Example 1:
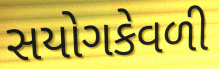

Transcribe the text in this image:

સયોગકેવળી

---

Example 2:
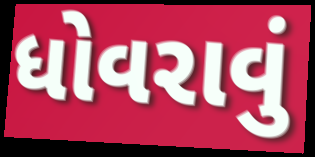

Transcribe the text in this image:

ધોવરાવું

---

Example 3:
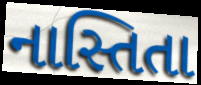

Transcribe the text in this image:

નાસ્તિતા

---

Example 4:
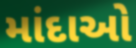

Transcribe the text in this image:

માંદાઓ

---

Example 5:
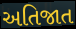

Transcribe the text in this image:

અતિજાત